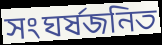
সংঘর্ষজনিত